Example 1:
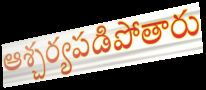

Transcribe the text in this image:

ఆశ్చర్యపడిపోతారు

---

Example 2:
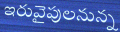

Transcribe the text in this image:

ఇరువైపులనున్న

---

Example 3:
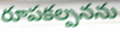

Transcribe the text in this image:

రూపకల్పనను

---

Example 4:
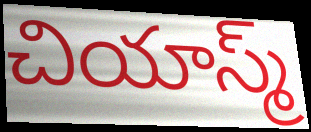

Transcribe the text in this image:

చియాస్మ్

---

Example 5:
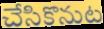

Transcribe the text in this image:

చేసికొనుట